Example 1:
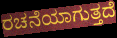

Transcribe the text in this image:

ರಚನೆಯಾಗುತ್ತದೆ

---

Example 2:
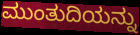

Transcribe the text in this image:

ಮುಂತುದಿಯನ್ನು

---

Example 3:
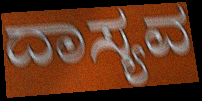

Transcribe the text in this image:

ದಾಸ್ಯವ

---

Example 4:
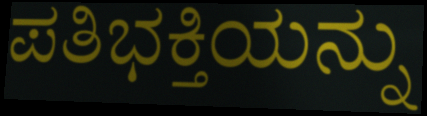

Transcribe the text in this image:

ಪತಿಭಕ್ತಿಯನ್ನು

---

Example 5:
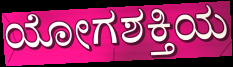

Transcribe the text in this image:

ಯೋಗಶಕ್ತಿಯ